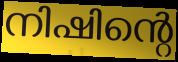
നിഷിന്റെ